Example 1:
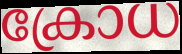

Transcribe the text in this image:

ക്രോധ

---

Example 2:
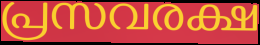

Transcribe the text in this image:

പ്രസവരക്ഷ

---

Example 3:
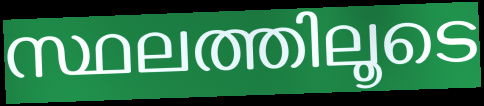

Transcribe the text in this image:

സ്ഥലത്തിലൂടെ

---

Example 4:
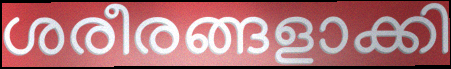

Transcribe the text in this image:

ശരീരങ്ങളാക്കി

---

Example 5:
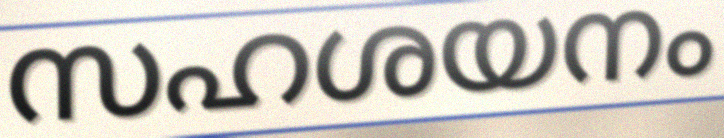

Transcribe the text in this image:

സഹശയനം